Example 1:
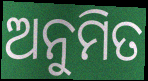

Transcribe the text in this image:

ଅନୁମିତ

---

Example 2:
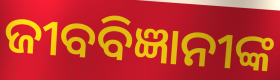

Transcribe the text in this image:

ଜୀବବିଜ୍ଞାନୀଙ୍କ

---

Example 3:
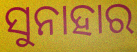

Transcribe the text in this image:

ସୁନାହାର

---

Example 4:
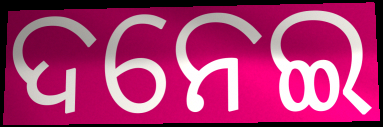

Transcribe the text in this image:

ଦନେଇ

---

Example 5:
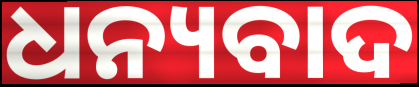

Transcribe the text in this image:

ଧନ୍ୟବାଦ